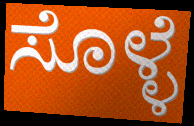
ಸೊಳ್ಳೆ